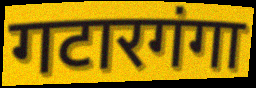
गटारगंगा